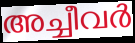
അച്ചീവർ